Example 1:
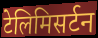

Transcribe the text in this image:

टेलिमिसर्टन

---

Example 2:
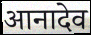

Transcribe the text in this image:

आनादेव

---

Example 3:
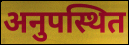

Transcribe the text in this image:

अनुपस्थित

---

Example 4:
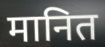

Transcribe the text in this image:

मानित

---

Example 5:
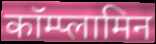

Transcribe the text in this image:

कॉम्प्लामिन